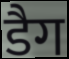
डैग